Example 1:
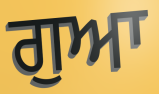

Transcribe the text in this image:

ਗੁਆ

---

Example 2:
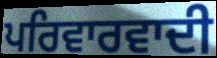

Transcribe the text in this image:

ਪਰਿਵਾਰਵਾਦੀ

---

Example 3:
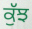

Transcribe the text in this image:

ਕੁੱਝ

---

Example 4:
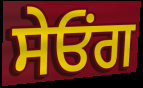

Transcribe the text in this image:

ਸੇਓਂਗ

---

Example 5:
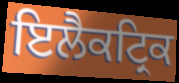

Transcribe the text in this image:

ਇਲੈਕਟ੍ਰਿਕ